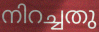
നിറച്ചതു